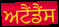
ਅਟੈਂਡੈਂਸ